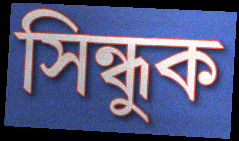
সিন্ধুক